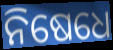
ନିଷେଧେ